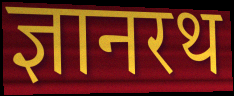
ज्ञानरथ